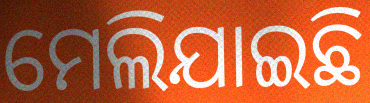
ମେଲିଯାଇଛି